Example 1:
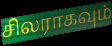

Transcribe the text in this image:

சிலராகவும்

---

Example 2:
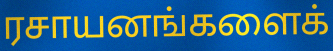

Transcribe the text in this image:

ரசாயனங்களைக்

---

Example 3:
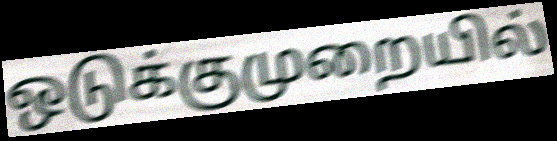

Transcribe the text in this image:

ஒடுக்குமுறையில்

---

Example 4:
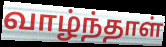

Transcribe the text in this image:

வாழ்ந்தாள்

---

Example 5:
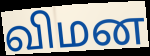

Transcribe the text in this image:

விமன